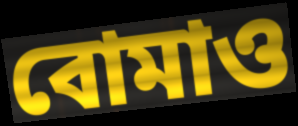
বোমাও